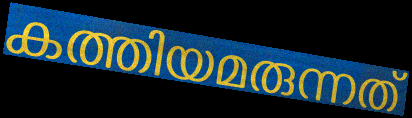
കത്തിയമരുന്നത്